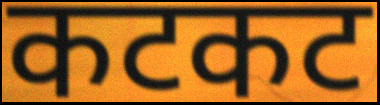
कटकट